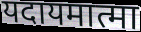
यदायमात्मा